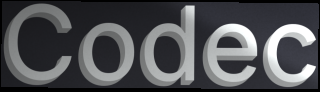
Codec